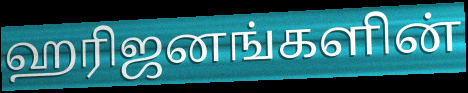
ஹரிஜனங்களின்